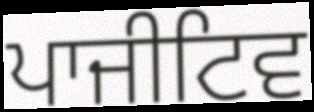
ਪਾਜੀਟਿਵ